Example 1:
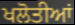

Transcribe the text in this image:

ਖਲੋਤੀਆਂ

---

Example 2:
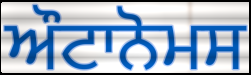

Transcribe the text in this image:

ਔਟਾਨੋਮਸ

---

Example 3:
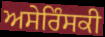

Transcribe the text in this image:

ਅਸੇਰਿੰਸਕੀ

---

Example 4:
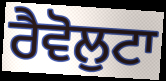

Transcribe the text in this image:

ਰੈਵੋਲੁਟਾ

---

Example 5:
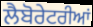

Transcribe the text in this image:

ਲੈਬੋਰੇਟਰੀਆਂ